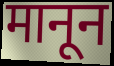
मानून